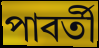
পাবর্তী